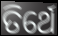
ତିର୍ଥେ